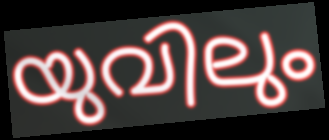
യുവിലും